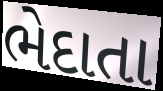
ભેદાતા